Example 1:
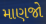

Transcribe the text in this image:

માણજો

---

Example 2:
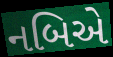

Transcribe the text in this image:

નબિએ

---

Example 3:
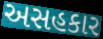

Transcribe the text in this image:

અસહકાર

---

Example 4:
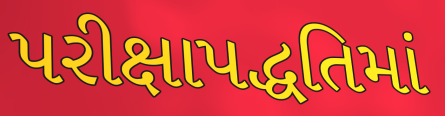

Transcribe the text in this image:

પરીક્ષાપદ્ધતિમાં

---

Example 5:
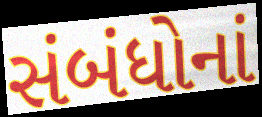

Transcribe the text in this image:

સંબંધોનાં